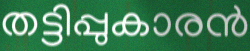
തട്ടിപ്പുകാരൻ